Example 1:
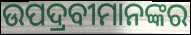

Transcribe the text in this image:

ଉପଦ୍ରବୀମାନଙ୍କର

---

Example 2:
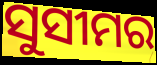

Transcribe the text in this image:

ସୁସୀମର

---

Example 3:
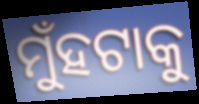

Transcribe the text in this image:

ମୁଁହଟାକୁ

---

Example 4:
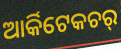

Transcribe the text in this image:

ଆର୍କିଟେକଚର୍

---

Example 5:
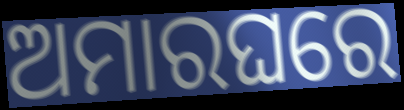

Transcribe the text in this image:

ଅମାରଘରେ